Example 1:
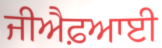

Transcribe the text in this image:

ਜੀਐਫ਼ਆਈ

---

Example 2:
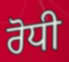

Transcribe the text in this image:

ਰੋਧੀ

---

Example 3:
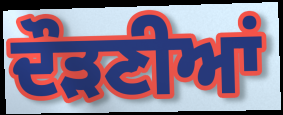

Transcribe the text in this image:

ਦੌੜਣੀਆਂ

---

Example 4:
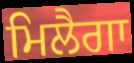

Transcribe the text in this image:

ਮਿਲੈਗਾ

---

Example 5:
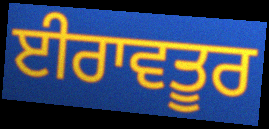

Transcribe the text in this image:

ਈਰਾਵਤੂਰ